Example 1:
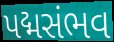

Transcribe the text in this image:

પદ્મસંભવ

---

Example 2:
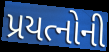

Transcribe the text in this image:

પ્રયત્નોની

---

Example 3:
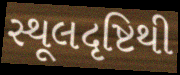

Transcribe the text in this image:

સ્થૂલદૃષ્ટિથી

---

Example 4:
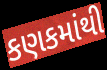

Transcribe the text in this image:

કણકમાંથી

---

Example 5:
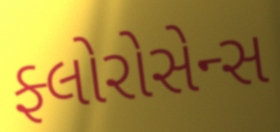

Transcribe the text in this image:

ફ્લોરોસેન્સ